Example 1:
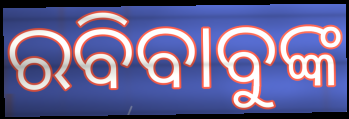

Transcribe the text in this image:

ରବିବାବୁଙ୍କ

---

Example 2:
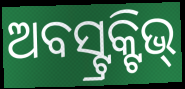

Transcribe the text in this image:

ଅବସ୍ଟ୍ରକ୍ଟିଭ୍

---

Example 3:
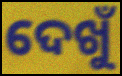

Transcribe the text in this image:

ଦେଖୁଁ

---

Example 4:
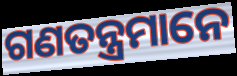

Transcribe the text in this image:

ଗଣତନ୍ତ୍ରମାନେ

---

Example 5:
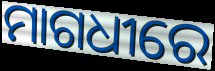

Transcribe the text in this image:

ମାଗଧୀରେ